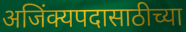
अजिंक्यपदासाठीच्या